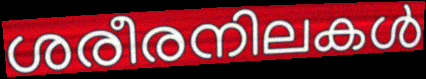
ശരീരനിലകൾ